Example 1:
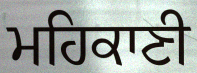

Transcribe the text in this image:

ਮਹਿਕਾਣੀ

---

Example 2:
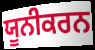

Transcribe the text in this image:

ਯੂਨੀਕਰਨ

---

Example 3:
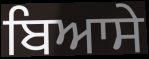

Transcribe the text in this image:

ਬਿਆਸੇ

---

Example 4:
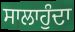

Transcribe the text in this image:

ਸਾਲਾਹੁੰਦਾ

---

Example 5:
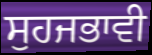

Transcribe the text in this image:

ਸੁਹਜਭਾਵੀ